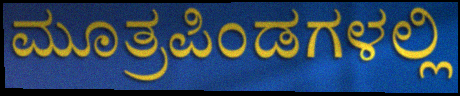
ಮೂತ್ರಪಿಂಡಗಳಲ್ಲಿ